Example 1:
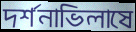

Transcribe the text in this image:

দর্শনাভিলাষে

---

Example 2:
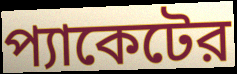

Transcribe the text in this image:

প্যাকেটের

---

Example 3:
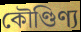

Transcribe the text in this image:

কৌণ্ডিণ্য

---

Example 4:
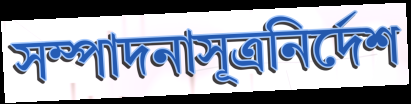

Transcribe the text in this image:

সম্পাদনাসূত্রনির্দেশ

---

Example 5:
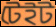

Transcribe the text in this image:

টেইট